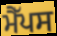
ਮੈੱਪਸ